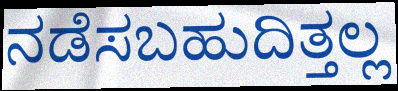
ನಡೆಸಬಹುದಿತ್ತಲ್ಲ